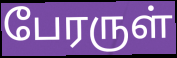
பேரருள்